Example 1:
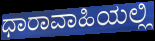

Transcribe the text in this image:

ಧಾರಾವಾಹಿಯಲ್ಲಿ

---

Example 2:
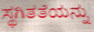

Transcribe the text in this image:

ಸ್ಥಗಿತತೆಯನ್ನು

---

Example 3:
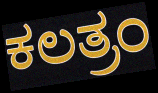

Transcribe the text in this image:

ಕಲತ್ರಂ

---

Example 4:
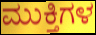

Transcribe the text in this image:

ಮುಕ್ತಿಗಳ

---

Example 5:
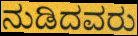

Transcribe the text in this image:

ನುಡಿದವರು